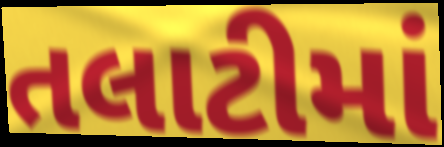
તલાટીમાં